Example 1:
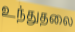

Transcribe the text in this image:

உந்துதலை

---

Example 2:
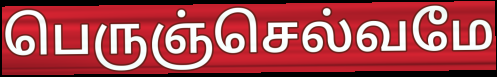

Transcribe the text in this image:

பெருஞ்செல்வமே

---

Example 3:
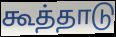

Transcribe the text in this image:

கூத்தாடு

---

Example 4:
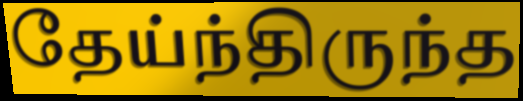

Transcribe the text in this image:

தேய்ந்திருந்த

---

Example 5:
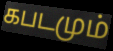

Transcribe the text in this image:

கபடமும்